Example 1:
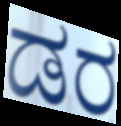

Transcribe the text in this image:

ಡರ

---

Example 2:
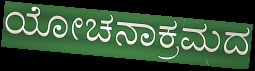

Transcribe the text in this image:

ಯೋಚನಾಕ್ರಮದ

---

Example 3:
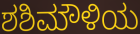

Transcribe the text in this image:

ಶಶಿಮೌಳಿಯ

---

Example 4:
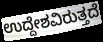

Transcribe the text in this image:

ಉದ್ದೇಶವಿರುತ್ತದೆ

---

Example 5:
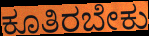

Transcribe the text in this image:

ಕೂತಿರಬೇಕು